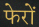
फेरों